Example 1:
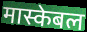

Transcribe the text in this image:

मास्केबल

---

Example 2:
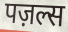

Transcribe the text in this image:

पज़ल्स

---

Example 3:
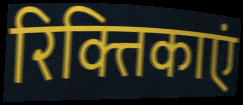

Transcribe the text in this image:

रिक्तिकाएं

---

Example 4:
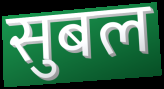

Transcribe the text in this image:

सुबल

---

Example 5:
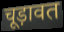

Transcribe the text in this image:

चूड़ावत